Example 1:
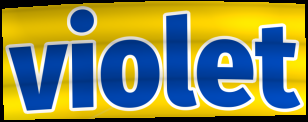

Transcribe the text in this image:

violet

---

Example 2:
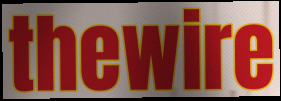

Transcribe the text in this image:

thewire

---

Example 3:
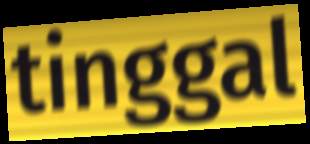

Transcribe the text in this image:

tinggal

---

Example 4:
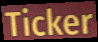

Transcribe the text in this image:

Ticker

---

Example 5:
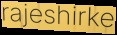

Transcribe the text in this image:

rajeshirke